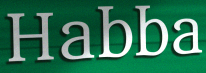
Habba